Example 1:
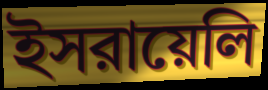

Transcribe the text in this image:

ইসরায়েলি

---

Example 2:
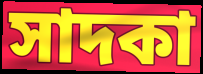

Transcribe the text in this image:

সাদকা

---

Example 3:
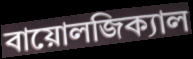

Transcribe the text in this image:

বায়োলজিক্যাল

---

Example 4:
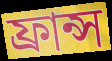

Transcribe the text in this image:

ফ্রান্স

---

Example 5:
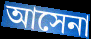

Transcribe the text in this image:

আসেনা